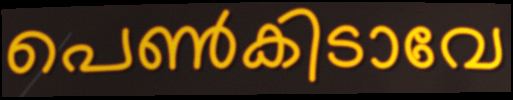
പെൺകിടാവേ